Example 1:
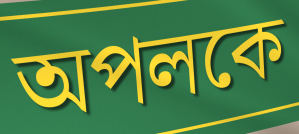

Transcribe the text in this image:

অপলকে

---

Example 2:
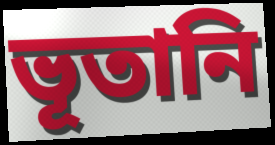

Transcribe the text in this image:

ভূতানি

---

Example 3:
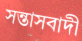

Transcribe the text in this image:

সন্তাসবাদী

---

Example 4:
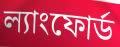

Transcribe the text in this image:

ল্যাংফোর্ড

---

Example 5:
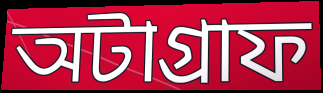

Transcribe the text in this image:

অটাগ্রাফ